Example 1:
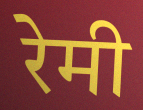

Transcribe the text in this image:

रेमी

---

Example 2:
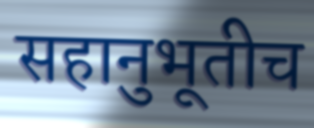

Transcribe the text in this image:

सहानुभूतीच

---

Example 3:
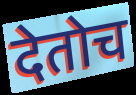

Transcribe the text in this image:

देतोच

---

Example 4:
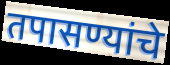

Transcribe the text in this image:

तपासण्यांचे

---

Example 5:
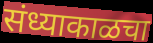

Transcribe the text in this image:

संध्याकाळचा